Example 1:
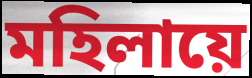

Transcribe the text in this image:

মহিলায়ে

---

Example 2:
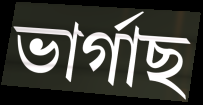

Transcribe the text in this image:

ভাৰ্গাছ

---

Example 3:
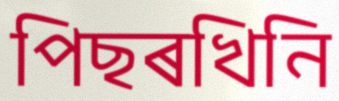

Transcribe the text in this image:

পিছৰখিনি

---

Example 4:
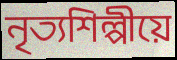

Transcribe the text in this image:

নৃত্যশিল্পীয়ে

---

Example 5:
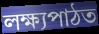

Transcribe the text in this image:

লক্ষ্যপাঠত